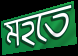
মহতে